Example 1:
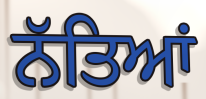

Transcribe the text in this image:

ਨੱਤਿਆਂ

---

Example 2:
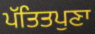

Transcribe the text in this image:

ਪੱਤਿਤਪੁਣਾ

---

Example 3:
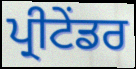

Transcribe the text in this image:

ਪ੍ਰੀਟੇਂਡਰ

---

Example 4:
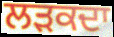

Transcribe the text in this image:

ਲੜਕਦਾ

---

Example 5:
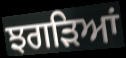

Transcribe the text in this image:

ਝਗੜਿਆਂ